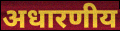
अधारणीय